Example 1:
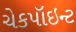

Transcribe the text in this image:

ચેકપૉઇન્ટ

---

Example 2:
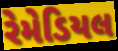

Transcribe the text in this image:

રેમેડિયલ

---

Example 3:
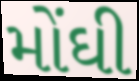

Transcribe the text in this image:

મોંઘી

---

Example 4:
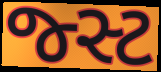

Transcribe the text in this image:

જ્સ્ટ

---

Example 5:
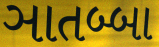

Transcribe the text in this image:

ઞાતબ્બા